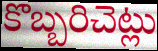
కొబ్బరిచెట్లు